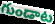
గుండాట